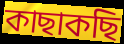
কাছাকছি